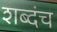
शब्दंच